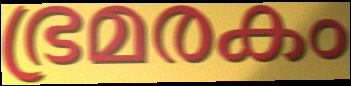
ഭ്രമരകം